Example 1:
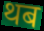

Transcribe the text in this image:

थब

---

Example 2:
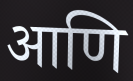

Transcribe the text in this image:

आणि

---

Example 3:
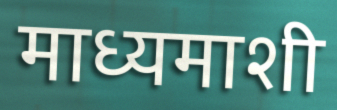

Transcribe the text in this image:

माध्यमाशी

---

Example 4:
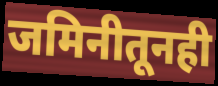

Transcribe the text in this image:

जमिनीतूनही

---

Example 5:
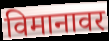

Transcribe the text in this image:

विमानावर